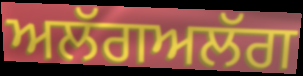
ਅਲੱਗਅਲੱਗ